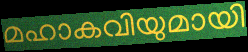
മഹാകവിയുമായി